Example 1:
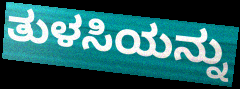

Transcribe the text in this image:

ತುಳಸಿಯನ್ನು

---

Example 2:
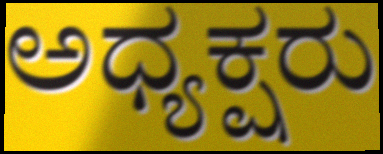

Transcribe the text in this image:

ಅಧ್ಯಕ್ಷರು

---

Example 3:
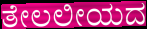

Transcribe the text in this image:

ತೇಲಲೀಯದ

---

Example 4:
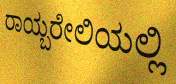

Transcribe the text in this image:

ರಾಯ್ಬರೇಲಿಯಲ್ಲಿ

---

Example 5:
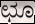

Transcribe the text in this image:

ಛೂ